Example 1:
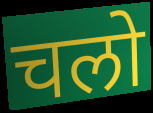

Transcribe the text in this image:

चलो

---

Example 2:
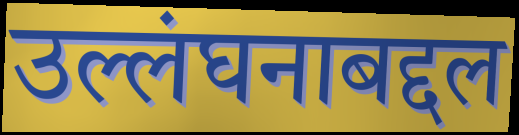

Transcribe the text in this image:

उल्लंघनाबद्दल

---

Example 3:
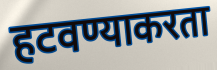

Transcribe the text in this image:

हटवण्याकरता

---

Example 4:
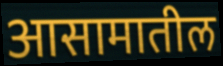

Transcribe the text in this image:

आसामातील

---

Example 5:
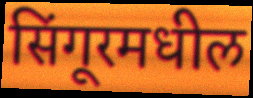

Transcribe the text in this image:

सिंगूरमधील